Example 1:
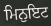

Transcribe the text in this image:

ਮਿਨੁਇਟ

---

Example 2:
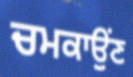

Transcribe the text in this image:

ਚਮਕਾਉਂਣ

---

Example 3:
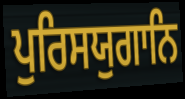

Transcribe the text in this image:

ਪੁਰਿਸਯੁਗਾਨਿ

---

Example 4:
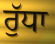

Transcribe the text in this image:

ਰੁੱਧਾ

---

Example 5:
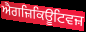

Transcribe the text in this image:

ਐਗਜ਼ਿਕਿਊਟਿਵਜ਼